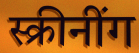
स्क्रीनींग